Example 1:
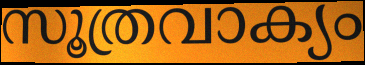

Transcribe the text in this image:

സൂത്രവാക്യം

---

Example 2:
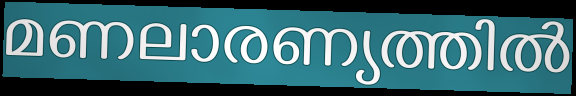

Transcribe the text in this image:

മണലാരണ്യത്തിൽ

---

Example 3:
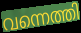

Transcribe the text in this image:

വന്നെത്തി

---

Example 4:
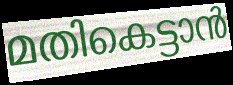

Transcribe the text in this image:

മതികെട്ടാൻ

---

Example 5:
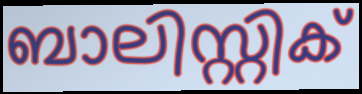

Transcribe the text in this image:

ബാലിസ്റ്റിക്